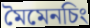
মৈমেনচিং